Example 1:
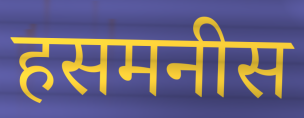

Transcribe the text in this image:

हसमनीस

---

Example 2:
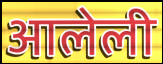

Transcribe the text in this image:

आलेली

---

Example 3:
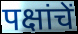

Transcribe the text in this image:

पक्षांचें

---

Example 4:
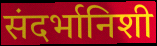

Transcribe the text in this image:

संदर्भानिशी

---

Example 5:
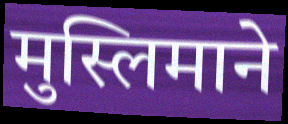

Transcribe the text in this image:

मुस्लिमाने